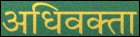
अधिवक्ता